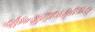
ഏര്പ്പെടുത്തുകയും